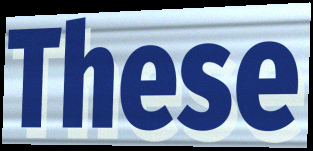
These